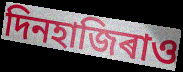
দিনহাজিৰাও